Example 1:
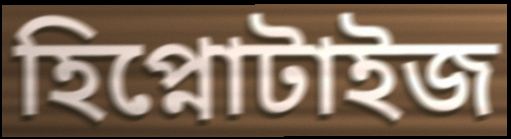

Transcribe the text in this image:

হিপ্নোটাইজ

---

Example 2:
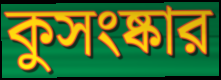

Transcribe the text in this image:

কুসংষ্কার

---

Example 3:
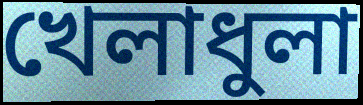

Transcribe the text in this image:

খেলাধুলা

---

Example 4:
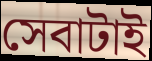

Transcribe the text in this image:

সেবাটাই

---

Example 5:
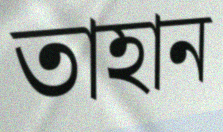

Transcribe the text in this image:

তাহান